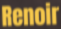
Renoir